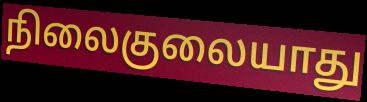
நிலைகுலையாது